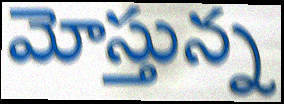
మోస్తున్న